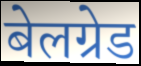
बेलग्रेड